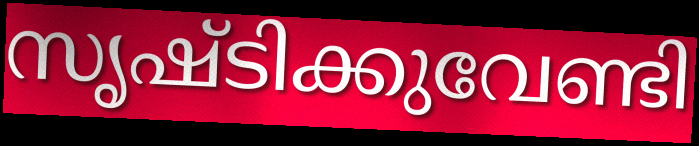
സൃഷ്ടിക്കുവേണ്ടി